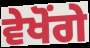
ਵੇਖੋਂਗੇ